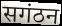
सगंठन